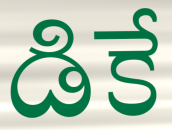
డికే